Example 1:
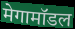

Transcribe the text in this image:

मेगामॉडल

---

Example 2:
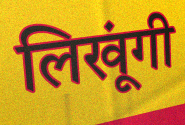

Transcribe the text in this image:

लिखूंगी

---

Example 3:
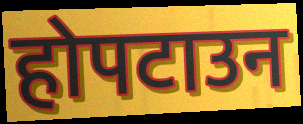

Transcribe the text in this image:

होपटाउन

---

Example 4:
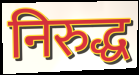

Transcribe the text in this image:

निरुद्ध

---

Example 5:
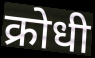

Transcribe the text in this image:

क्रोधी